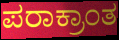
ಪರಾಕ್ರಾಂತ